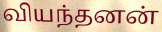
வியந்தனன்